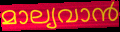
മാല്യവാൻ